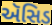
ઍસિડ